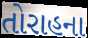
તોરાહના